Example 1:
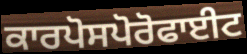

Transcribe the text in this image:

ਕਾਰਪੋਸਪੋਰੋਫਾਈਟ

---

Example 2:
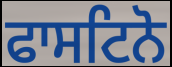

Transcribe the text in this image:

ਫਾਸਟਿਨੋ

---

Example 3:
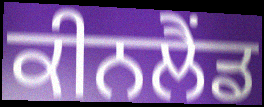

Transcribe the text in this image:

ਕੀਨਲੈਂਡ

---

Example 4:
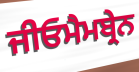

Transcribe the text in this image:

ਜੀਓਮੈਮਬ੍ਰੇਨ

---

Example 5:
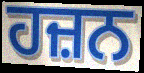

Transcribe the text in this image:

ਹਜ਼ਨ